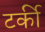
टर्की